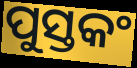
ପୁସ୍ତକଂ